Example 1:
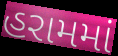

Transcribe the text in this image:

હરામમાં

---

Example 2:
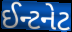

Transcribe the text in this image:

ઈન્ટનેટ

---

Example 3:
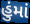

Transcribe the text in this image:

હુંમાં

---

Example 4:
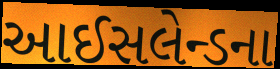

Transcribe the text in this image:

આઈસલેન્ડના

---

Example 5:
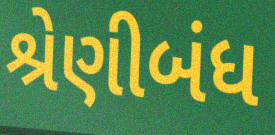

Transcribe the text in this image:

શ્રેણીબંધ